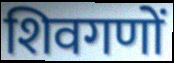
शिवगणों